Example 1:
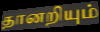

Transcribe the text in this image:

தானறியும்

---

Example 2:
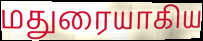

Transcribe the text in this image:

மதுரையாகிய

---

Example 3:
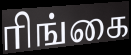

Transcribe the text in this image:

ரிங்கை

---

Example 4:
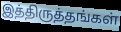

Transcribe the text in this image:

இத்திருத்தங்கள்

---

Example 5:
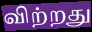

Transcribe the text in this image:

விற்றது